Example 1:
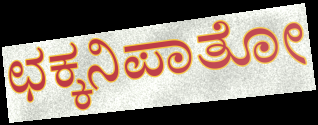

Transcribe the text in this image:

ಛಕ್ಕನಿಪಾತೋ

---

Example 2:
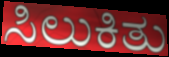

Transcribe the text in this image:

ಸಿಲುಕಿತು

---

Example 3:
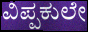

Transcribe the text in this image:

ವಿಪ್ಪಕುಲೇ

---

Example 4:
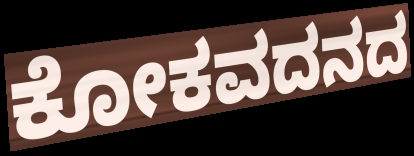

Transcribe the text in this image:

ಕೋಕವದನದ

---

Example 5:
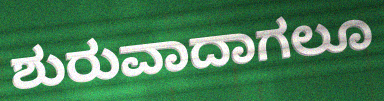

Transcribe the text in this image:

ಶುರುವಾದಾಗಲೂ